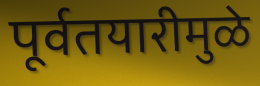
पूर्वतयारीमुळे